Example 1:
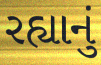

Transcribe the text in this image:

રહ્યાનું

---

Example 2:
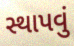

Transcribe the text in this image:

સ્થાપવું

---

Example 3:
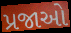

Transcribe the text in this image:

પ્રજાઓ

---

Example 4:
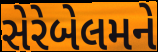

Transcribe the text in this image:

સેરેબેલમને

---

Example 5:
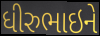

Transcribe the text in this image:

ધીરુભાઇને